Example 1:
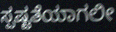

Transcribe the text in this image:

ಸ್ಪಷ್ಟತೆಯಾಗಲೀ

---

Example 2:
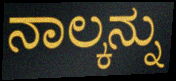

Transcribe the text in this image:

ನಾಲ್ಕನ್ನು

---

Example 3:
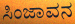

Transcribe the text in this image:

ಸಿಂಜಾವನ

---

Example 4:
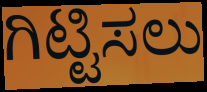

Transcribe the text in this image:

ಗಿಟ್ಟಿಸಲು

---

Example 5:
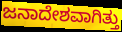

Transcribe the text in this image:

ಜನಾದೇಶವಾಗಿತ್ತು